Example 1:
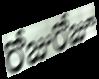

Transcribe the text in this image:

రోజురోజూ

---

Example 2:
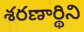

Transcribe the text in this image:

శరణార్థిని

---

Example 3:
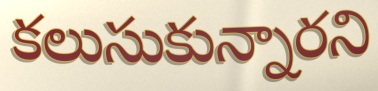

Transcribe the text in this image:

కలుసుకున్నారని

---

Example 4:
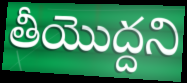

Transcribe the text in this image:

తీయొద్దని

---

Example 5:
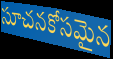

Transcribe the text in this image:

సూచనకోసమైన